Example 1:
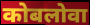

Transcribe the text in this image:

कोबलोवा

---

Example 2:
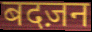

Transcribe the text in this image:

बदज़न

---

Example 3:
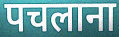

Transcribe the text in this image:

पचलाना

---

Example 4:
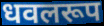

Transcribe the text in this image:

धवलरूप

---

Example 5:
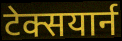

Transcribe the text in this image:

टेक्सयार्न